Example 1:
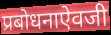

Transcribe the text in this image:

प्रबोधनाऐवजी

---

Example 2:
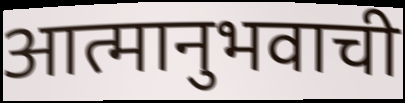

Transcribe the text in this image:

आत्मानुभवाची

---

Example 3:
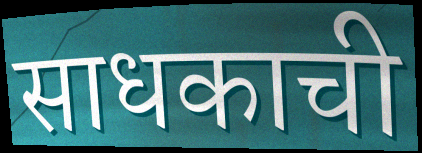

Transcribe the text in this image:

साधकाची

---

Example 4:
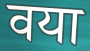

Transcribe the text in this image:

वया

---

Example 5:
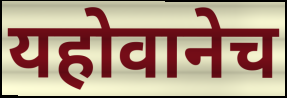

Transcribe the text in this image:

यहोवानेच